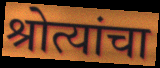
श्रोत्यांचा